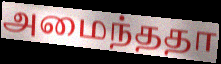
அமைந்ததா